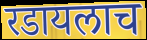
रडायलाच